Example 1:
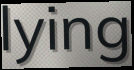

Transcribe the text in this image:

lying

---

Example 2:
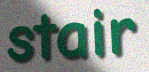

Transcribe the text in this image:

stair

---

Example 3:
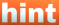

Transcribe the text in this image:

hint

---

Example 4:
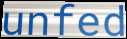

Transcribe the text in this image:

unfed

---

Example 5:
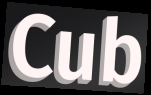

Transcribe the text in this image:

Cub